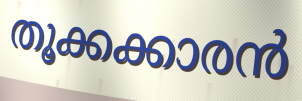
തൂക്കക്കാരൻ